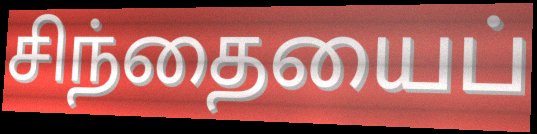
சிந்தையைப்